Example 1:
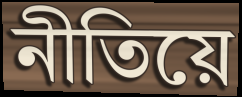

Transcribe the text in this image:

নীতিয়ে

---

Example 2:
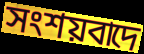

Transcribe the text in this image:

সংশয়বাদে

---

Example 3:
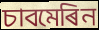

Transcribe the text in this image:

চাবমেৰিন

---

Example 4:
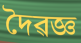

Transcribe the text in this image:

দৈৱজ্ঞ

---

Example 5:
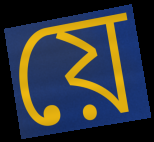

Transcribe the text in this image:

য়ে